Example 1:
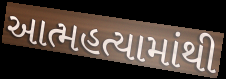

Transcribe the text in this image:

આત્મહત્યામાંથી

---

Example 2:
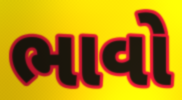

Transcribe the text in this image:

ભાવો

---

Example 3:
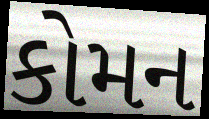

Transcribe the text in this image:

કોમન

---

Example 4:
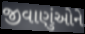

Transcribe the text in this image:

જીવાણુંઓને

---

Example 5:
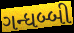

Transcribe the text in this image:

ગન્ધબ્બી